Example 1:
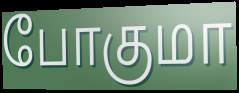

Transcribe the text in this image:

போகுமா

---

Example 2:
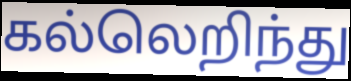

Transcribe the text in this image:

கல்லெறிந்து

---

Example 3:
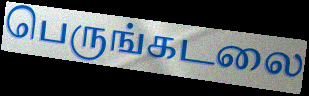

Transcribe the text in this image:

பெருங்கடலை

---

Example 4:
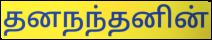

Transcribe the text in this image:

தனநந்தனின்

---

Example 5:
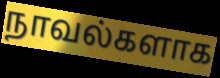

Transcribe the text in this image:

நாவல்களாக